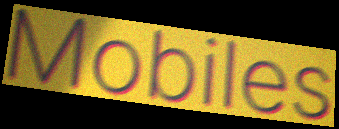
Mobiles